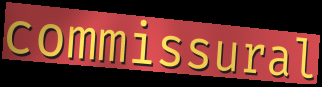
commissural